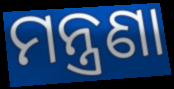
ମନ୍ତ୍ରଣା